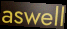
aswell